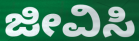
ಜೀವಿಸಿ